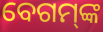
ବେଗମ୍‌ଙ୍କ